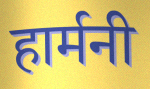
हार्मनी